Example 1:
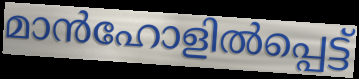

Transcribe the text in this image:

മാൻഹോളിൽപ്പെട്ട്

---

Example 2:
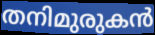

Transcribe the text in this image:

തനിമുരുകൻ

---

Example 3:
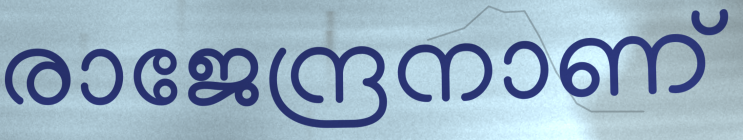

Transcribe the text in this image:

രാജേന്ദ്രനാണ്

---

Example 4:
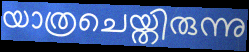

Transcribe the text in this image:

യാത്രചെയ്തിരുന്നു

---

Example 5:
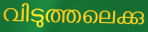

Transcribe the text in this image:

വിടുത്തലെക്കു